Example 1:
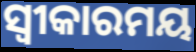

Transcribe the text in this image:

ସ୍ଵୀକାରମୟ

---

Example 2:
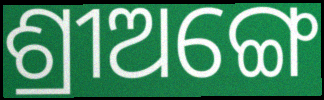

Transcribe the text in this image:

ଶ୍ରୀଅଙ୍ଗେ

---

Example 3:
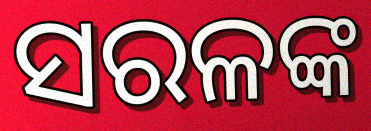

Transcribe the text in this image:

ସରଳଙ୍କ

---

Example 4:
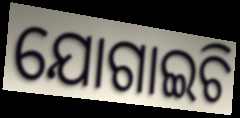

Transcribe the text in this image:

ଯୋଗାଇଚି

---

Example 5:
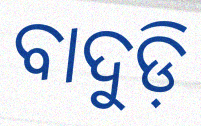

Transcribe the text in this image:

ବାଦୁଡ଼ି